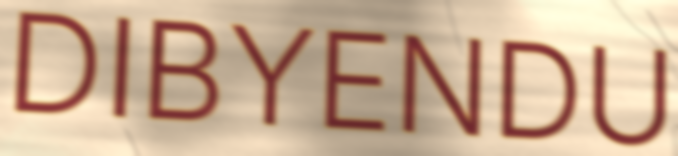
DIBYENDU